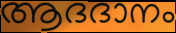
ആദദാനം